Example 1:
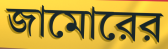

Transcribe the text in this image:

জামোরের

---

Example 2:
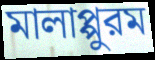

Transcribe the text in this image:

মালাপ্পুরম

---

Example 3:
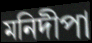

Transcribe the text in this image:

মনিদীপা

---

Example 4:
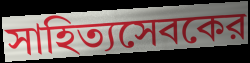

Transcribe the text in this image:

সাহিত্যসেবকের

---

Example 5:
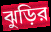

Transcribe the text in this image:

ঝুড়ির